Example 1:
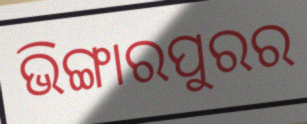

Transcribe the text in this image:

ଭିଙ୍ଗାରପୁରର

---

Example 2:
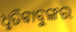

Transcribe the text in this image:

ଧୃତିବାବୁଙ୍କର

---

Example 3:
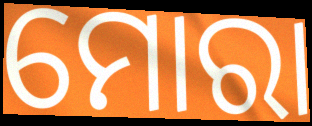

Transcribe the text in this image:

ମୋରା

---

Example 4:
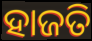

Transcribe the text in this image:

ହାଜତି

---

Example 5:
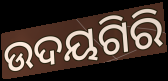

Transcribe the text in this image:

ଉଦୟଗିରି